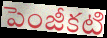
పెంజీకటి